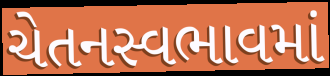
ચેતનસ્વભાવમાં